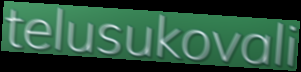
telusukovali